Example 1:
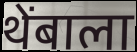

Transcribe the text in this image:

थेंबाला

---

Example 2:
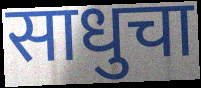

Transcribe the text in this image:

साधुचा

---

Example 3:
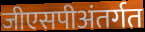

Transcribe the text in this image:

जीएसपीअंतर्गत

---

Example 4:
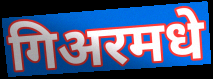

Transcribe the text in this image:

गिअरमधे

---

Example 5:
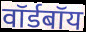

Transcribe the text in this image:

वॉर्डबॉय